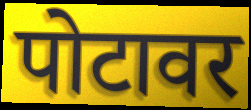
पोटावर